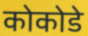
कोकोडे